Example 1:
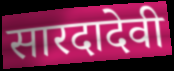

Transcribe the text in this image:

सारदादेवी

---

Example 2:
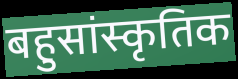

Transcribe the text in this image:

बहुसांस्कृतिक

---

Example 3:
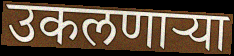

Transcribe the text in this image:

उकलणाऱ्या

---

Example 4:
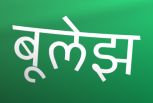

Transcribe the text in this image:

बूलेझ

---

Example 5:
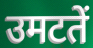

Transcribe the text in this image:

उमटतें